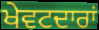
ਖੇਵਟਦਾਰਾਂ